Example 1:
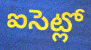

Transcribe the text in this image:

ఐసెట్లో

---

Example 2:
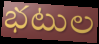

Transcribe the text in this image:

భటుల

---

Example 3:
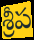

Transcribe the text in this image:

శ్రీప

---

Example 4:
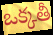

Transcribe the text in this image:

ఒక్కతీ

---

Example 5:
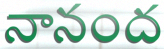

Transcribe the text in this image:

నానంద